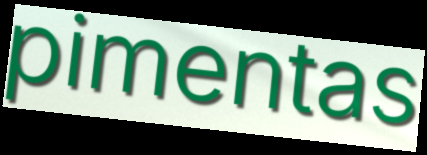
pimentas